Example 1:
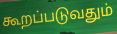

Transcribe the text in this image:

கூறப்படுவதும்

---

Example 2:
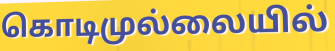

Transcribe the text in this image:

கொடிமுல்லையில்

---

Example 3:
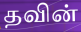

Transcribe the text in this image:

தவின்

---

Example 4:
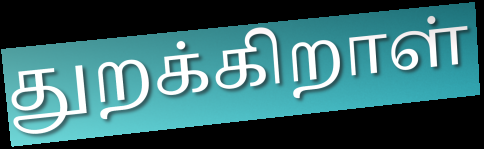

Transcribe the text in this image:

துறக்கிறாள்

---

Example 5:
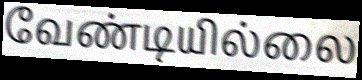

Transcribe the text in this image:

வேண்டியில்லை